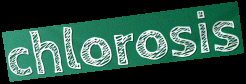
chlorosis